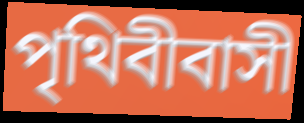
পৃথিবীবাসী